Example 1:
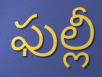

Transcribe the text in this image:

ఫుల్లీ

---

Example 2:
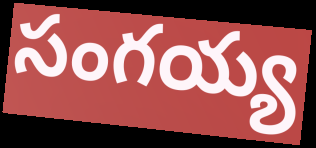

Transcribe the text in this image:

సంగయ్య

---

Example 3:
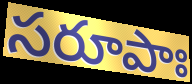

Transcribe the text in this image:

సరూపాః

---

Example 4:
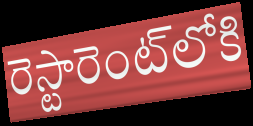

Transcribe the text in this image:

రెస్టారెంట్‌లోకి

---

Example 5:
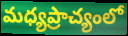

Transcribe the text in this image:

మధ్యప్రాచ్యంలో